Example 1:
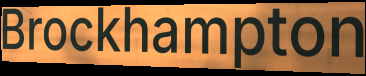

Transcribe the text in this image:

Brockhampton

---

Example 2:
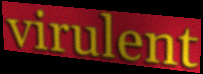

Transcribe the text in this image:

virulent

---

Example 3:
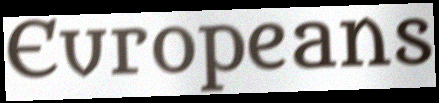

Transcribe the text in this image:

Europeans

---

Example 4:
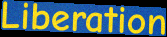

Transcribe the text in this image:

Liberation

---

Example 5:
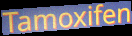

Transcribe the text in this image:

Tamoxifen